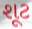
શૂટ